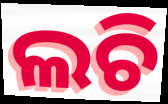
ଲଚି